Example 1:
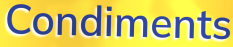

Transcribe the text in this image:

Condiments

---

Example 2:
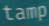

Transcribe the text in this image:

tamp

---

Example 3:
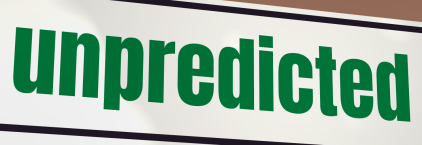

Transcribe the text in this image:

unpredicted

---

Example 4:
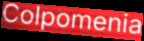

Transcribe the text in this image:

Colpomenia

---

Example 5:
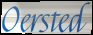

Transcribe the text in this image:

Oersted